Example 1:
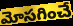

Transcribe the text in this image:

మోసగించే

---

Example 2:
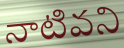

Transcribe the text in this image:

నాటివని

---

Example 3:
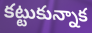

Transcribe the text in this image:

కట్టుకున్నాక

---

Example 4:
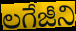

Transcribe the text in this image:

లగేజీని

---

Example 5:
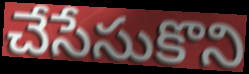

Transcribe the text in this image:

చేసేసుకొని